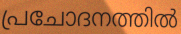
പ്രചോദനത്തിൽ